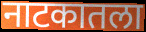
नाटकातला